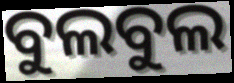
ବୁଲବୁଲ